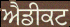
ਐਡੀਕਟ